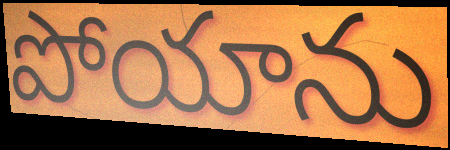
పోయాను